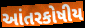
આંતરકોષીય